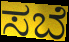
ಸಬೆ